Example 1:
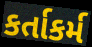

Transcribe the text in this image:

કર્તાકર્મ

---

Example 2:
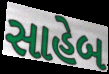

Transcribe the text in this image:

સાહેબ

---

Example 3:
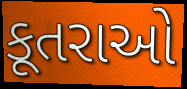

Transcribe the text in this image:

કૂતરાઓ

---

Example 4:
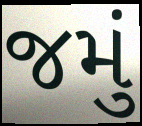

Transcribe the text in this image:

જમું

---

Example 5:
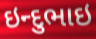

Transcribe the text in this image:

ઇન્દુભાઇ